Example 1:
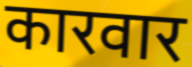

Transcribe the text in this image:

कारवार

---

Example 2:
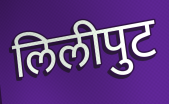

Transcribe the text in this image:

लिलीपुट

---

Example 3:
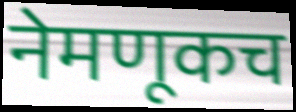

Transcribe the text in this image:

नेमणूकच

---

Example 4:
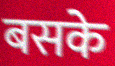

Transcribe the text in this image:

बसके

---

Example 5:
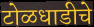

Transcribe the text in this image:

टोळधाडीचे